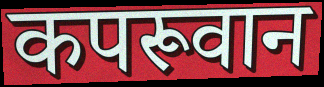
कपरूवान